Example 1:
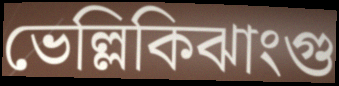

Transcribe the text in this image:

ভেল্লিকিঝাংগু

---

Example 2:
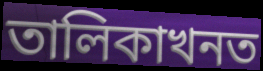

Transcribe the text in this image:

তালিকাখনত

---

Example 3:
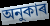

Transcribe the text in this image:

অনুকাৰ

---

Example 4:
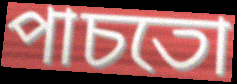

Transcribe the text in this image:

পাচতো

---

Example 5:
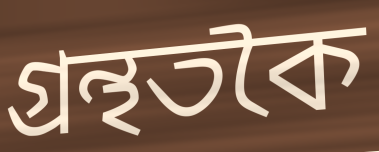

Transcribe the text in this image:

গ্ৰন্থতকৈ